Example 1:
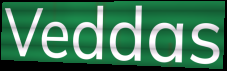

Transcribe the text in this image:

Veddas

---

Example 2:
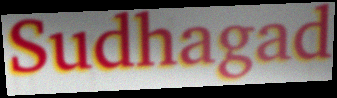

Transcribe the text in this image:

Sudhagad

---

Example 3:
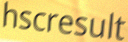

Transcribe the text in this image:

hscresult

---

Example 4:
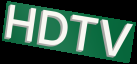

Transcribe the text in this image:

HDTV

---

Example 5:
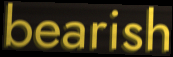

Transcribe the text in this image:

bearish